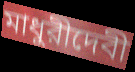
মাধুরীদেবী